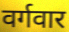
वर्गवार